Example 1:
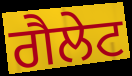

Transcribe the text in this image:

ਗੈਲੇਟ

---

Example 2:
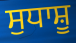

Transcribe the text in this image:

ਸੁਧਾਸ਼ੂ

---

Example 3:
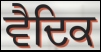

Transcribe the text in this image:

ਵੈਦਿਕ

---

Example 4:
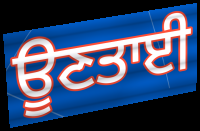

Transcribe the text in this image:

ਊਣਤਾਈ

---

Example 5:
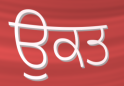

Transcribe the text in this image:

ਉਕਤ